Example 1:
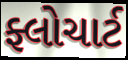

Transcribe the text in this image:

ફ્લોચાર્ટ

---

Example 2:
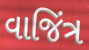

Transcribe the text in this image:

વાજિંત્ર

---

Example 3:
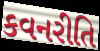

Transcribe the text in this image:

કવનરીતિ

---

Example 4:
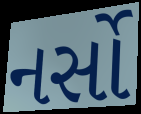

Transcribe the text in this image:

નર્સો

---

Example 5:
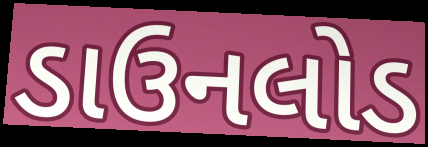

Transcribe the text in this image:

ડાઉનલોડ